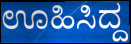
ಊಹಿಸಿದ್ದ